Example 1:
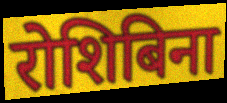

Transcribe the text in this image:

रोशिबिना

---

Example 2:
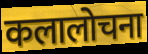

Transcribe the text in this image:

कलालोचना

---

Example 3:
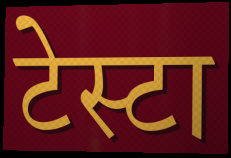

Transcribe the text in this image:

टेस्टा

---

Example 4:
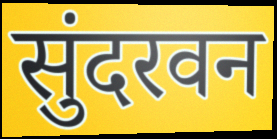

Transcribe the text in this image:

सुंदरवन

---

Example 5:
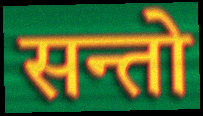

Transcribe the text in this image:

सन्तो